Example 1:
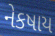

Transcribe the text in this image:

નેકષાય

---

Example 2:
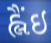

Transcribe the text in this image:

હ્લૈંઇ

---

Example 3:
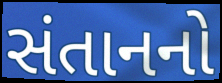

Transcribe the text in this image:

સંતાનનો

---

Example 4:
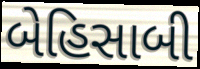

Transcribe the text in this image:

બેહિસાબી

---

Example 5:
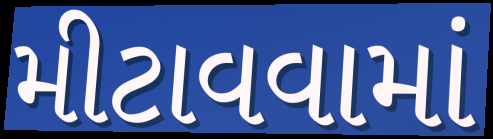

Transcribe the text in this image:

મીટાવવામાં